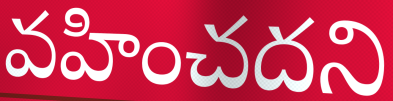
వహించదని